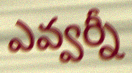
ఎవ్వర్నీ